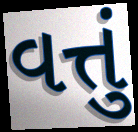
વત્તું